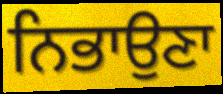
ਨਿਭਾਉਣਾ